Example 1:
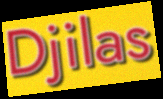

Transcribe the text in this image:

Djilas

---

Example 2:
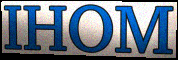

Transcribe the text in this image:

IHOM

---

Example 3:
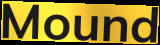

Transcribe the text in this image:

Mound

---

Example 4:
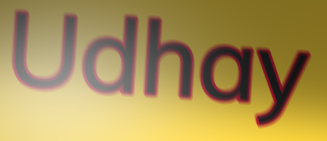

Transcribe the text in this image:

Udhay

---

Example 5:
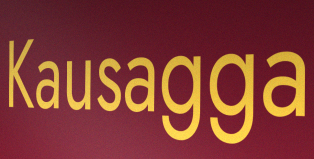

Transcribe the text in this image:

Kausagga